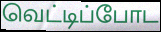
வெட்டிப்போட